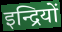
इन्द्रियों